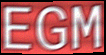
EGM